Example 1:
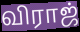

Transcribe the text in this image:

விராஜ்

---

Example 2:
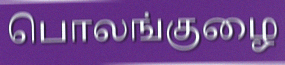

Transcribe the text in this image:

பொலங்குழை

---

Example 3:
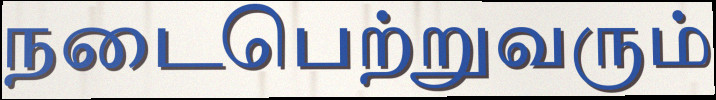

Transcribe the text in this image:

நடைபெற்றுவரும்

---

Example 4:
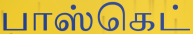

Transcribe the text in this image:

பாஸ்கெட்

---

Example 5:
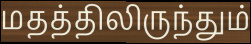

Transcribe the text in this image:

மதத்திலிருந்தும்